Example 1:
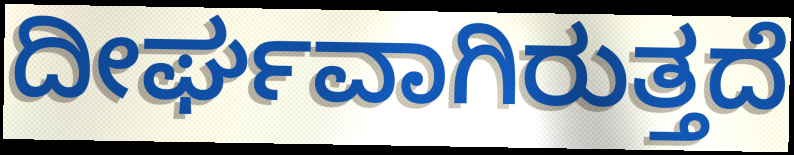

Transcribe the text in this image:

ದೀರ್ಘವಾಗಿರುತ್ತದೆ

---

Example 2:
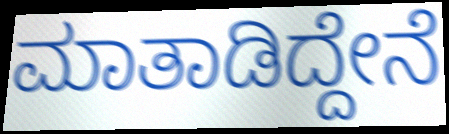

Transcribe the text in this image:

ಮಾತಾಡಿದ್ದೇನೆ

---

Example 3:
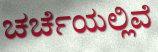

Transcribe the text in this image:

ಚರ್ಚೆಯಲ್ಲಿವೆ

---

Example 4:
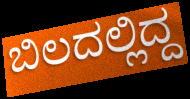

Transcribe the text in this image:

ಬಿಲದಲ್ಲಿದ್ದ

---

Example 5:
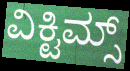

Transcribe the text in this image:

ವಿಕ್ಟಿಮ್ಸ್